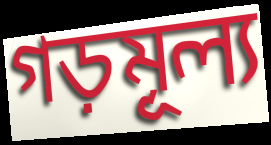
গড়মূল্য